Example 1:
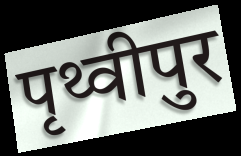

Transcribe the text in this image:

पृथ्वीपुर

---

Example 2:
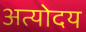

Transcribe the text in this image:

अत्योदय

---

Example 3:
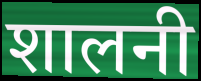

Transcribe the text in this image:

शालनी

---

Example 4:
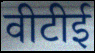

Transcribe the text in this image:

वीटीई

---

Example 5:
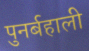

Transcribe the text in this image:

पुनर्बहाली